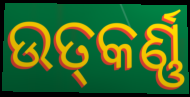
ଉତ୍‍କର୍ଣ୍ଣ